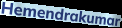
Hemendrakumar